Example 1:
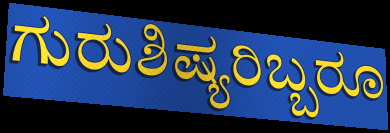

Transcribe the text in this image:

ಗುರುಶಿಷ್ಯರಿಬ್ಬರೂ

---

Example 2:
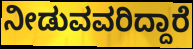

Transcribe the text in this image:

ನೀಡುವವರಿದ್ದಾರೆ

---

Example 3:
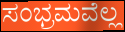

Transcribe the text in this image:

ಸಂಭ್ರಮವೆಲ್ಲ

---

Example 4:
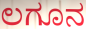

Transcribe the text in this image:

ಲಗೂನ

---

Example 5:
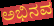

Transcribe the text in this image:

ಅಭಿನವ